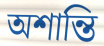
অশান্তি